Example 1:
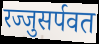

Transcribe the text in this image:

रज्जुसर्पवत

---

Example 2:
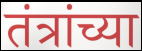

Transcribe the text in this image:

तंत्रांच्या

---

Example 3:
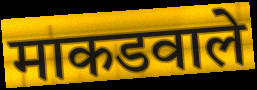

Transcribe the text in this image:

माकडवाले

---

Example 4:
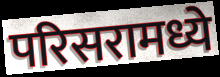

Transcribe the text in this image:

परिसरामध्ये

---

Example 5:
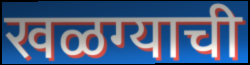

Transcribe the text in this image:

खळग्याची